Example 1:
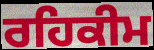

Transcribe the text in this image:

ਰਹਿਕੀਮ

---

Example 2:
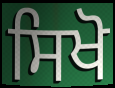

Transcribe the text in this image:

ਸਿਖੋ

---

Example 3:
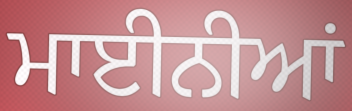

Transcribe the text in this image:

ਮਾਈਨੀਆਂ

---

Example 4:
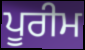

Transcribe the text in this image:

ਪੂਰੀਮ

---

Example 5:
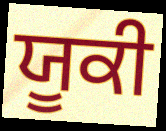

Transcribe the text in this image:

ਯੂਕੀ